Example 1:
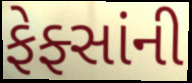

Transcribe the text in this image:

ફેફ્સાંની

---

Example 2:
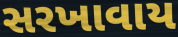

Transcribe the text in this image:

સરખાવાય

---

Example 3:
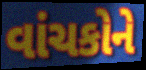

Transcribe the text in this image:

વાંચકોને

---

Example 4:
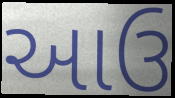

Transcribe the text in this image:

આઉ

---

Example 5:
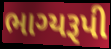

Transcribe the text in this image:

ભાગ્યરૂપી